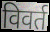
विवर्त